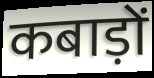
कबाड़ों